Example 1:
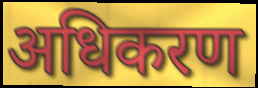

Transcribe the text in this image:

अधिकरण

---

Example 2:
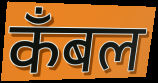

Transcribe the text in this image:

कँबल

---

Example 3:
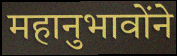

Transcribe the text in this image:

महानुभावोंने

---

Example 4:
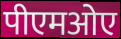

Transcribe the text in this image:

पीएमओए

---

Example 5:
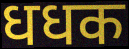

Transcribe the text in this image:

धधक